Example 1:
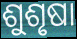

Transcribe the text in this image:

ଶୁଶୃଷା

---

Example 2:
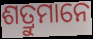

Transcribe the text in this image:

ଶତ୍ରୁମାନେ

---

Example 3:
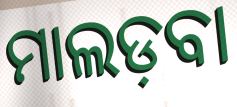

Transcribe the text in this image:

ମାଲଡ଼ବା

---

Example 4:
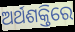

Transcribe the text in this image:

ଅର୍ଥଶକ୍ତିରେ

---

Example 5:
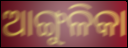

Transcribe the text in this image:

ଆଙ୍ଗୁଳିକା